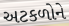
અટકળોને